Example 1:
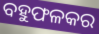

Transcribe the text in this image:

ବହୁଫଳକର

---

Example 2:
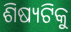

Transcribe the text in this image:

ଶିଷ୍ୟଟିକୁ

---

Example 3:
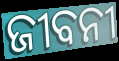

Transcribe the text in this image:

ଜୀବନୀ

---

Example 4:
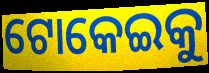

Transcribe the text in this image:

ଟୋକେଇକୁ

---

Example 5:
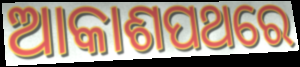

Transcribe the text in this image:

ଆକାଶପଥରେ